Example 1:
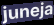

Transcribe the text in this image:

juneja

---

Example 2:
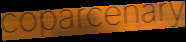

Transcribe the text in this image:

coparcenary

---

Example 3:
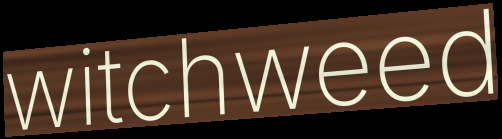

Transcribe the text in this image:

witchweed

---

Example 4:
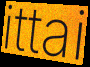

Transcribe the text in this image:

ittai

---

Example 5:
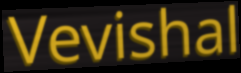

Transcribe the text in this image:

Vevishal